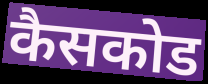
कैसकोड